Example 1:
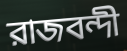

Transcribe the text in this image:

রাজবন্দী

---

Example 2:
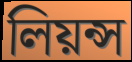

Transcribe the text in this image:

লিয়ন্স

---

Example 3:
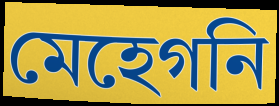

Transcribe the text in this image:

মেহেগনি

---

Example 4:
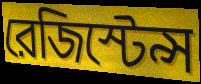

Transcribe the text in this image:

রেজিস্টেন্স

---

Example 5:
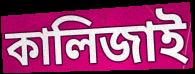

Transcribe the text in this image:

কালিজাই